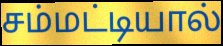
சம்மட்டியால்